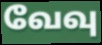
வேவு